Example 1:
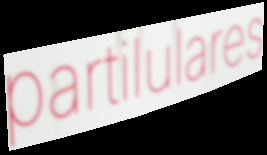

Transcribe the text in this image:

partilulares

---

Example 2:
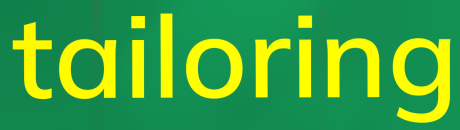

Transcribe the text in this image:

tailoring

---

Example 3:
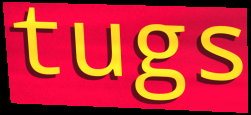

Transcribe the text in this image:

tugs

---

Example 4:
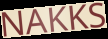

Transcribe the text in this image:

NAKKS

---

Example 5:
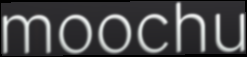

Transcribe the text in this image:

moochu